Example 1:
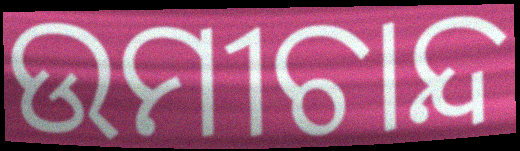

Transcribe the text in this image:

ଉମୀଚାନ୍ଦ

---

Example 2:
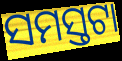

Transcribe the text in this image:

ସମସ୍ତଟା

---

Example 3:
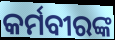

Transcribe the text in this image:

କର୍ମବୀରଙ୍କ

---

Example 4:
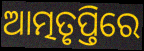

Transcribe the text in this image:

ଆତ୍ମତୃପ୍ତିରେ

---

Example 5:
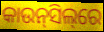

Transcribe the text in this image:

କାଉନ୍‌ସିଲ୍‌ରେ